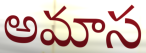
అమాస